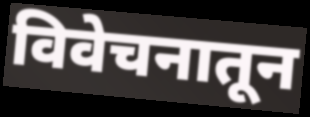
विवेचनातून